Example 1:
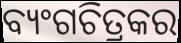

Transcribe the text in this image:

ବ୍ୟଂଗଚିତ୍ରକର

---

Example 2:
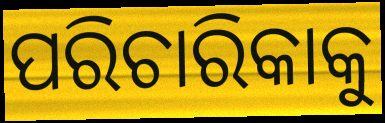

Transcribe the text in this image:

ପରିଚାରିକାକୁ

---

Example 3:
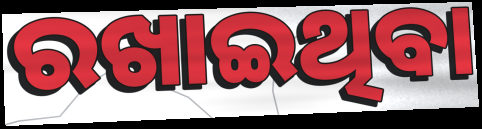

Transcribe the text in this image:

ରଖାଇଥିବା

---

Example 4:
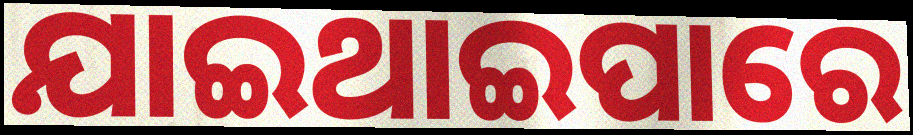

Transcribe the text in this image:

ଯାଇଥାଇପାରେ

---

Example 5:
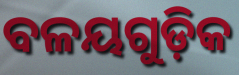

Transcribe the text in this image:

ବଳୟଗୁଡ଼ିକ